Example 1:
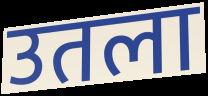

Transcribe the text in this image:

उतला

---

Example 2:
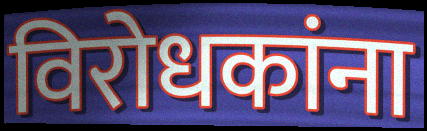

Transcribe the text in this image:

विरोधकांना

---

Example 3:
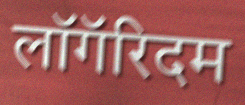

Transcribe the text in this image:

लॉगॅरिदम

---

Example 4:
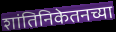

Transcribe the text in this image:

शांतिनिकेतनच्या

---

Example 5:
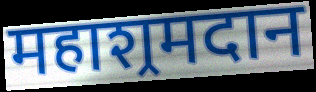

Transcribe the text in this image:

महाश्रमदान